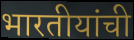
भारतीयांची